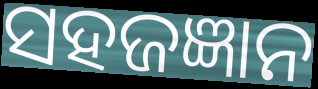
ସହଜଜ୍ଞାନ